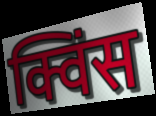
क्विंस